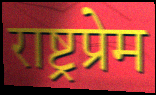
राष्ट्रप्रेम